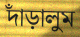
দাঁড়ালুম